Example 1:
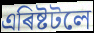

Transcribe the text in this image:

এৰিষ্টটলে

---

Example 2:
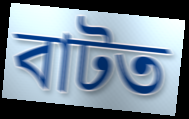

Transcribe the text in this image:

বাটত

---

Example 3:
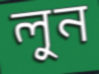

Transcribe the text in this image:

লুন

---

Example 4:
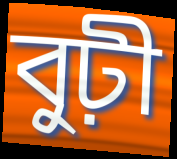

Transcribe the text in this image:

বুঢ়ী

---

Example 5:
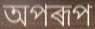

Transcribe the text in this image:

অপৰূপ